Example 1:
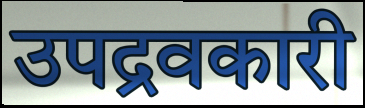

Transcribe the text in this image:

उपद्रवकारी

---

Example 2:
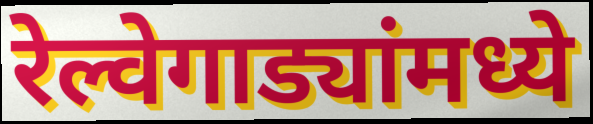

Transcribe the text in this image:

रेल्वेगाड्यांमध्ये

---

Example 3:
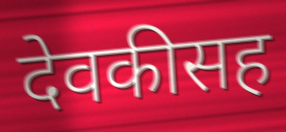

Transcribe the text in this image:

देवकीसह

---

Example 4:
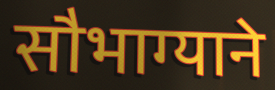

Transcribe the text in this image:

सौभाग्याने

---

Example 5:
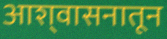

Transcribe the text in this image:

आश्वासनातून